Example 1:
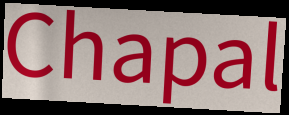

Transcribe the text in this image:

Chapal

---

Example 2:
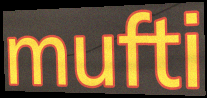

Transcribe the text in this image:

mufti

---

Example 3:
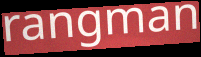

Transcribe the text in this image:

rangman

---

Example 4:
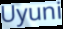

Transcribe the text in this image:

Uyuni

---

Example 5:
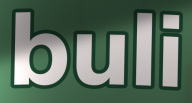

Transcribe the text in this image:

buli